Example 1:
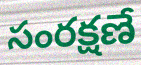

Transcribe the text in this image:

సంరక్షణే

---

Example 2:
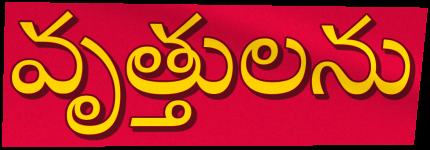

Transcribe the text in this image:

వృత్తులను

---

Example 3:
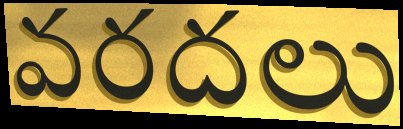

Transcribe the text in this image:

వరదలు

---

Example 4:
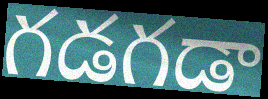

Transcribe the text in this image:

గడగడా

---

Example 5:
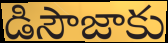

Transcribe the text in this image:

డిసౌజాకు